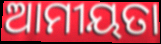
ଆମୀୟତା